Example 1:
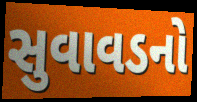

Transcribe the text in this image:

સુવાવડનો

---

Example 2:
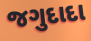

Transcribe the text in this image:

જગુદાદા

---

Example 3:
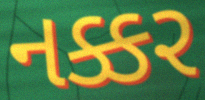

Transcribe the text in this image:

નક્કર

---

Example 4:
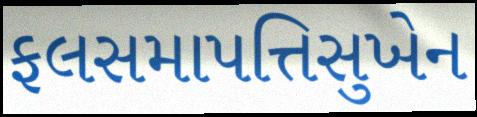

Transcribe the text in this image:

ફલસમાપત્તિસુખેન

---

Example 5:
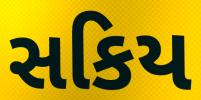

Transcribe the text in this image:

સકિય